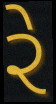
રે